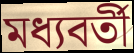
মধ্যবর্তী